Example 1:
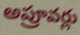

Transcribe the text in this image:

అప్రూవర్లు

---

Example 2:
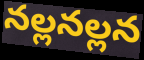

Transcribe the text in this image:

నల్లనల్లన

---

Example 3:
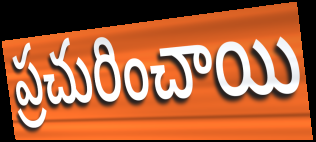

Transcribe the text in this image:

ప్రచురించాయి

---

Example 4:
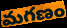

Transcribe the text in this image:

మగణం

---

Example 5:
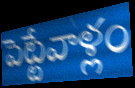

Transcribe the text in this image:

పెట్టేవాళ్లం